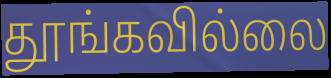
தூங்கவில்லை